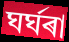
ঘৰ্ঘৰা